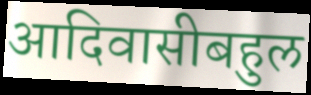
आदिवासीबहुल